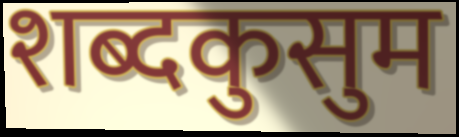
शब्दकुसुम